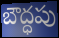
బౌద్ధపు